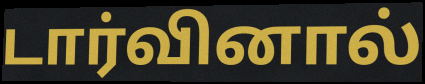
டார்வினால்